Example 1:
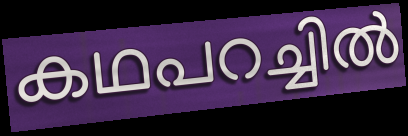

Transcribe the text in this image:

കഥപറച്ചിൽ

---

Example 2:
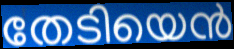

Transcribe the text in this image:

തേടിയെൻ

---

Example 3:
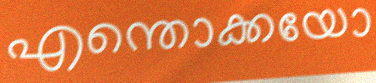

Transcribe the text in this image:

എന്തൊക്കയോ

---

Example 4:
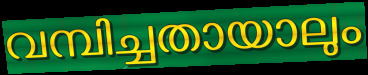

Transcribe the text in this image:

വമ്പിച്ചതായാലും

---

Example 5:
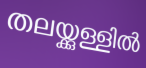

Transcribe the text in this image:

തലയ്ക്കുള്ളിൽ